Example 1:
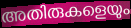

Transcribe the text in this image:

അതിരുകളെയും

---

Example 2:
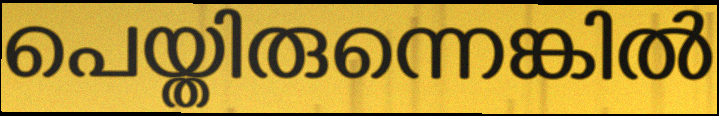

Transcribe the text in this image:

പെയ്തിരുന്നെങ്കിൽ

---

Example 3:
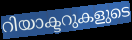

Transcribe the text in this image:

റിയാക്ടറുകളുടെ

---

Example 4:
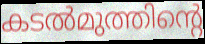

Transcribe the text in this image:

കടൽമുത്തിന്റെ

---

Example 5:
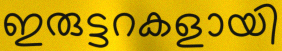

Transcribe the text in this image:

ഇരുട്ടറകളായി